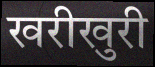
खरीखुरी